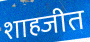
शाहजीत